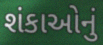
શંકાઓનું